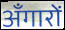
अँगारों